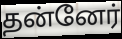
தன்னேர்